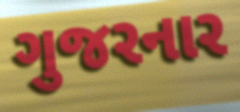
ગુજરનાર